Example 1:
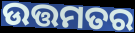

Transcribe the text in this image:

ଉତ୍ତମତର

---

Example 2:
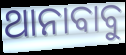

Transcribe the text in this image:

ଥାନାବାବୁ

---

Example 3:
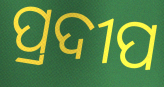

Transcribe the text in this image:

ପ୍ରଦୀପ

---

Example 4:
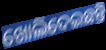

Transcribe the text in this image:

ଖୋଲିଦେଇଛନ୍ତି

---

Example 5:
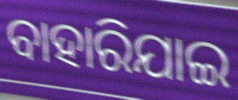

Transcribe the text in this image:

ବାହାରିଯାଇ